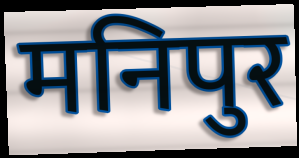
मनिपुर